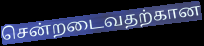
சென்றடைவதற்கான